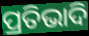
ପ୍ରତିଭାଦି